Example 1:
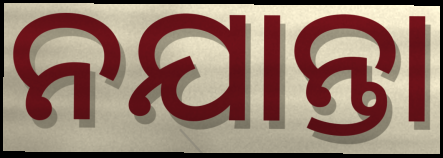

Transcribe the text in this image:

ନଯାନ୍ତା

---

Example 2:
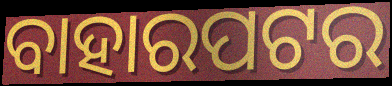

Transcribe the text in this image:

ବାହାରପଟର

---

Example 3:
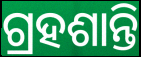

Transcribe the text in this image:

ଗ୍ରହଶାନ୍ତି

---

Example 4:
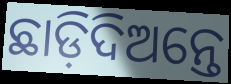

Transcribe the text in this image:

ଛାଡ଼ିଦିଅନ୍ତେ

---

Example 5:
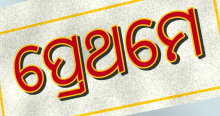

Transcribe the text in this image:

ପ୍ରେଥମେ